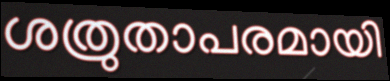
ശത്രുതാപരമായി